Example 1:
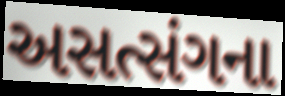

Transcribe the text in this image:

અસત્સંગના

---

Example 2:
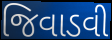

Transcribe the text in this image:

જિવાડવી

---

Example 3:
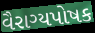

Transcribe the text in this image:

વૈરાગ્યપોષક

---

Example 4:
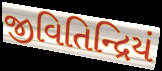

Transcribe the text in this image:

જીવિતિન્દ્રિયં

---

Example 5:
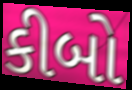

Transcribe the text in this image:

કીબો